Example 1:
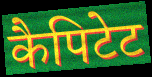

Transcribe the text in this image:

कैपिटेट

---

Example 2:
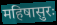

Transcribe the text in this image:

महिषासुरः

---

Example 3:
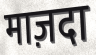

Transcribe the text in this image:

माज़दा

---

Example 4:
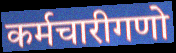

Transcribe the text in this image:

कर्मचारीगणो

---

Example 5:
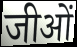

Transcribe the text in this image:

जीओं